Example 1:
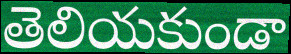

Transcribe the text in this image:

తెలియకుండా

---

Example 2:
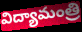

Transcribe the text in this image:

విద్యామంత్రి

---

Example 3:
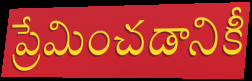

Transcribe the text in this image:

ప్రేమించడానికీ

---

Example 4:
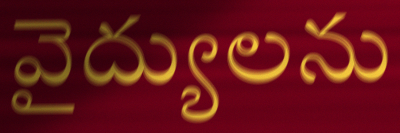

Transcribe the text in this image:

వైద్యులను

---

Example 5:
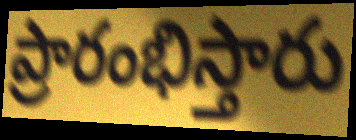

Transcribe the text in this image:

ప్రారంభిస్తారు